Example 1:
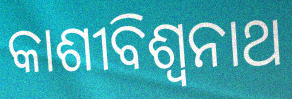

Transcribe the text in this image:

କାଶୀବିଶ୍ଵନାଥ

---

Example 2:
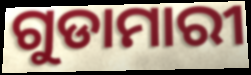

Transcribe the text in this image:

ଗୁଡାମାରୀ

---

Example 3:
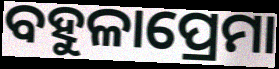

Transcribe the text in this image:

ବହୁଳାପ୍ରେମା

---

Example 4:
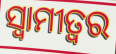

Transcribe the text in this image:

ସ୍ୱାମୀତ୍ୱର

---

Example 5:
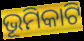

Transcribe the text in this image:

ଭୂମିକାଟି